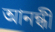
আনন্ধী